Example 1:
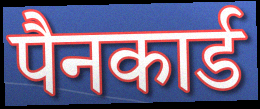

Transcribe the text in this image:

पैनकार्ड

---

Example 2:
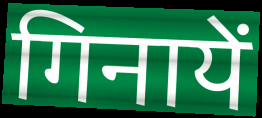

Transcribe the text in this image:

गिनायें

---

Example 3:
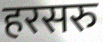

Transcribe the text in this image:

हरसरु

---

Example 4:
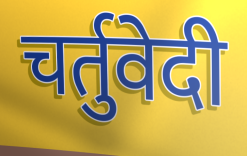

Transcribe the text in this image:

चर्तुवेदी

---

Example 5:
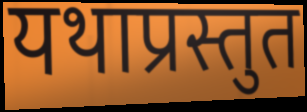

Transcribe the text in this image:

यथाप्रस्तुत